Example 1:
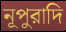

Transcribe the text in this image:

নূপুরাদি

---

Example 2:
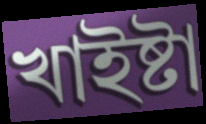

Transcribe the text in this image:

খাইষ্টা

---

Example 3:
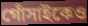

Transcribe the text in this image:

গোঁসাইকেও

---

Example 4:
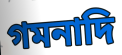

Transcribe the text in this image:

গমনাদি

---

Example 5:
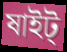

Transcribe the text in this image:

ষাইট্